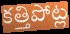
కత్తిపోట్ల